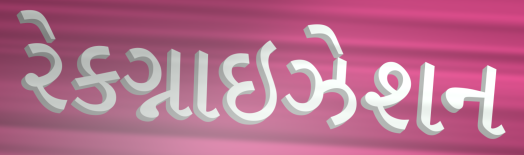
રેકગ્નાઇઝેશન